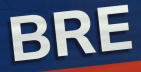
BRE